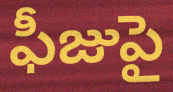
ఫీజుపై